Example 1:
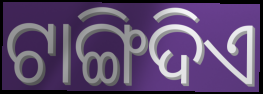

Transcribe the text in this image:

ଟାଙ୍ଗିଦିଏ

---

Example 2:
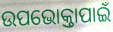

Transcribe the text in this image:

ଉପଭୋକ୍ତାପାଇଁ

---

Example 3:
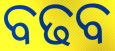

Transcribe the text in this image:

ବଢବ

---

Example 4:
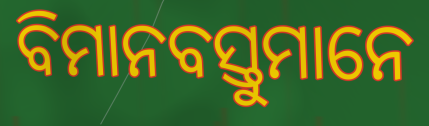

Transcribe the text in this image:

ବିମାନବସ୍ତୁମାନେ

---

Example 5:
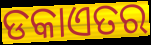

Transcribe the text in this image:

ଡକାଏତର